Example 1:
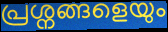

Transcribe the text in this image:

പ്രശ്നങ്ങളെയും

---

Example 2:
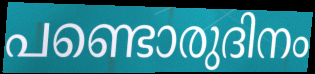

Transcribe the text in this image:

പണ്ടൊരുദിനം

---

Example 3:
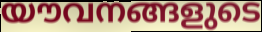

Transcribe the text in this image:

യൗവനങ്ങളുടെ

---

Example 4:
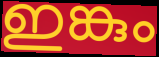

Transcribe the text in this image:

ഇങ്കും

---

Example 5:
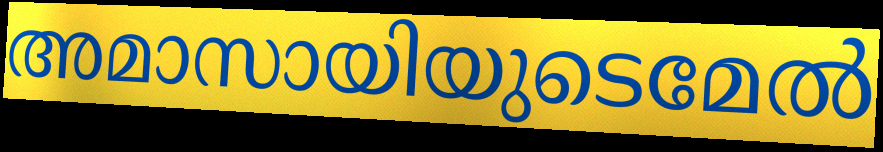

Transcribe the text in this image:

അമാസായിയുടെമേൽ